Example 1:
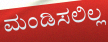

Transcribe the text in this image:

ಮಂಡಿಸಲಿಲ್ಲ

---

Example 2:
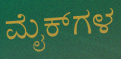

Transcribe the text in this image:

ಮೈಕ್‌ಗಳ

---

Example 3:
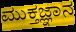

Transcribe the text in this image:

ಮುಕ್ತಜ್ಞಾನ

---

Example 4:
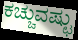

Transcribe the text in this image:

ಕಚ್ಚುವಷ್ಟು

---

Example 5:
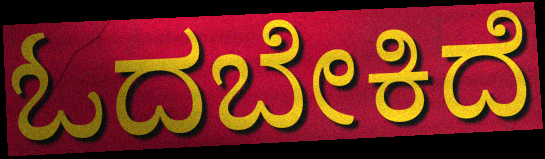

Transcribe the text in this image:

ಓದಬೇಕಿದೆ